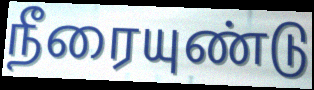
நீரையுண்டு